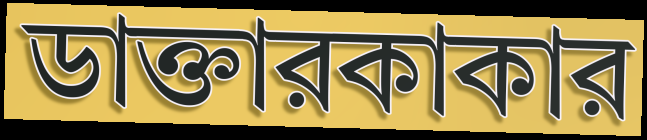
ডাক্তারকাকার